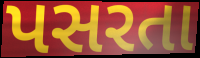
પસરતા